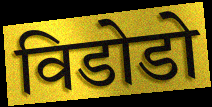
विडोडो